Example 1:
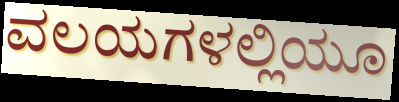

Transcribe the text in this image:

ವಲಯಗಳಲ್ಲಿಯೂ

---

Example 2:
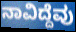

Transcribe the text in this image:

ನಾವಿದ್ದೆವು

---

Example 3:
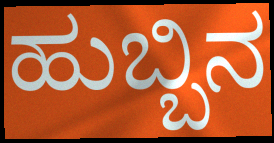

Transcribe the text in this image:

ಹುಬ್ಬಿನ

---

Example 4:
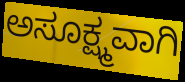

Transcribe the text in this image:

ಅಸೂಕ್ಷ್ಮವಾಗಿ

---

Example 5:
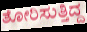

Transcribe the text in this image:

ತೋರಿಸುತ್ತಿದ್ದ